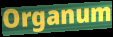
Organum